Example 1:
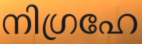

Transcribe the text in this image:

നിഗ്രഹേ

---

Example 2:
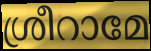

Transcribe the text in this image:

ശ്രീറാമേ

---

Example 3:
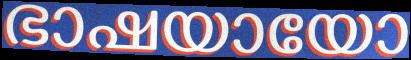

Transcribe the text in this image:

ഭാഷയായോ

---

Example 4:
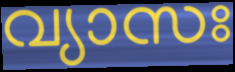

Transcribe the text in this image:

വ്യാസഃ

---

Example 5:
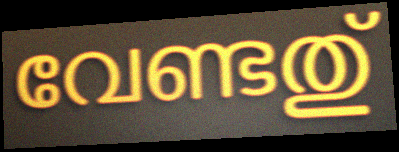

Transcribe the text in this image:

വേണ്ടതു്